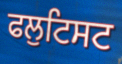
ਫਲੁਟਿਸਟ